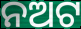
ନଅଟ